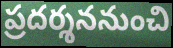
ప్రదర్శననుంచి